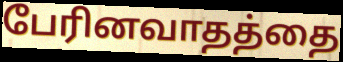
பேரினவாதத்தை